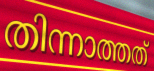
തിന്നാത്തത്